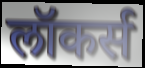
लॉकर्स